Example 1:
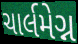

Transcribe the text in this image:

ચાર્લમેગ્ન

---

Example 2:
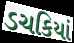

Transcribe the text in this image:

ડચકિયાં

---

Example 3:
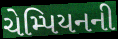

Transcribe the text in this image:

ચેમ્પિયનની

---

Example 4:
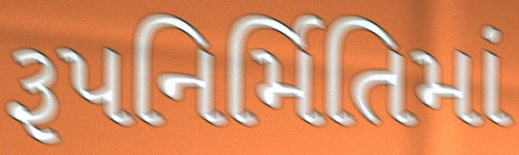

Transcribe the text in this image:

રૂપનિર્મિતિમાં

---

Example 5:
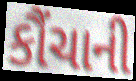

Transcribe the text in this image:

કૌંચાની